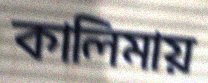
কালিমায়